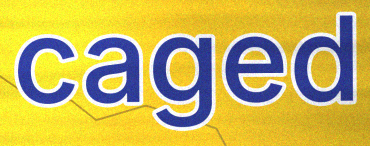
caged